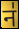
न॑